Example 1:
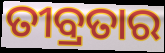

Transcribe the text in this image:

ତୀବ୍ରତାର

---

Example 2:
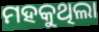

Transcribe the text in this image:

ମହକୁଥିଲା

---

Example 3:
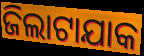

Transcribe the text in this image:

ଜିଲାଟାଯାକ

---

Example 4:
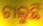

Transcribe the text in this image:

ଚାଲୁଛି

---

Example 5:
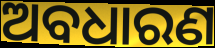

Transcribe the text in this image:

ଅବଧାରଣ